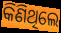
କିଣିଥିଲେ